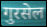
गुरसेल